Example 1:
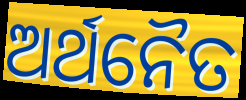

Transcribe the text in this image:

ଅର୍ଥନୈତ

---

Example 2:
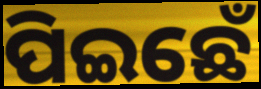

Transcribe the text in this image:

ପିଇଛେଁ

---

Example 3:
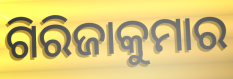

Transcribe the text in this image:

ଗିରିଜାକୁମାର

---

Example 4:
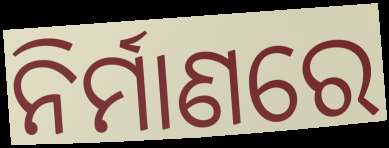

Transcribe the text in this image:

ନିର୍ମାଣରେ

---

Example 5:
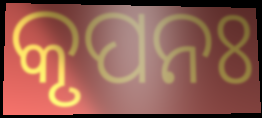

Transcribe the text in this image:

କୃପନଃ